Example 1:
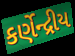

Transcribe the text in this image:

કર્ણેન્દ્રીય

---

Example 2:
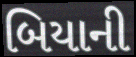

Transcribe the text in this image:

બિયાની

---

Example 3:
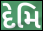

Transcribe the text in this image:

દેમિ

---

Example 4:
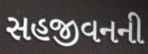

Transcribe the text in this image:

સહજીવનની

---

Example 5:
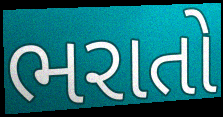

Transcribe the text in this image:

ભરાતો